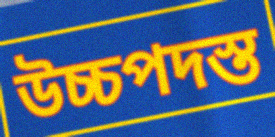
উচ্চপদস্ত